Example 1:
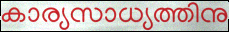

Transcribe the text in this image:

കാര്യസാധ്യത്തിനു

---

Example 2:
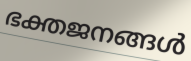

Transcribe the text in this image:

ഭക്തജനങ്ങൾ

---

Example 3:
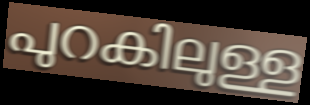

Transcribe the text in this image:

പുറകിലുള്ള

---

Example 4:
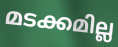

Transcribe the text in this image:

മടക്കമില്ല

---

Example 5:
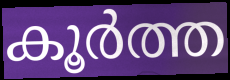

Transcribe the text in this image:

കൂർത്ത